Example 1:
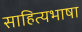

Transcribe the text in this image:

साहित्यभाषा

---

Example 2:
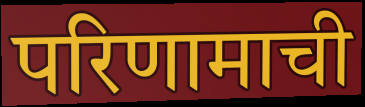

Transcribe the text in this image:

परिणामाची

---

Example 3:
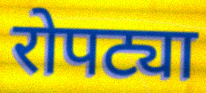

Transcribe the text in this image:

रोपट्या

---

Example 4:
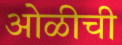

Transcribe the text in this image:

ओळीची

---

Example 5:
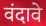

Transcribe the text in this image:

वंदावे